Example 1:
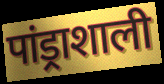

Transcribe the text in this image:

पांड्राशाली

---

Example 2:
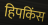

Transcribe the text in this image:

हिपकिंस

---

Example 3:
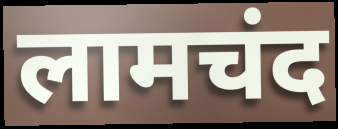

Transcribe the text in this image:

लामचंद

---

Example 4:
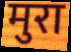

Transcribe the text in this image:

मुरा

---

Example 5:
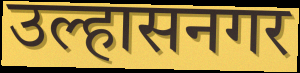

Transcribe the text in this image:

उल्हासनगर